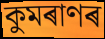
কুমৰাণৰ